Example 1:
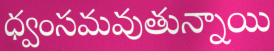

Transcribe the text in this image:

ధ్వంసమవుతున్నాయి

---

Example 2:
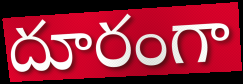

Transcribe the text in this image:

దూరంగా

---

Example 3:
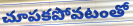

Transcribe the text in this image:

చూపకపోవటంతో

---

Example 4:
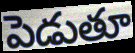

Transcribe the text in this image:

పెడుతూ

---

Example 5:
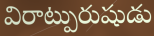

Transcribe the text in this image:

విరాట్పురుషుడు